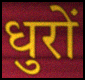
धुरों